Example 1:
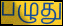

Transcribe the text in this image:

பழுது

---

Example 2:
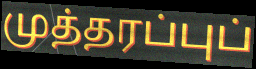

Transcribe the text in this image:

முத்தரப்புப்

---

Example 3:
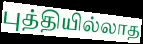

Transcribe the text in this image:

புத்தியில்லாத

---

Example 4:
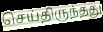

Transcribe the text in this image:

செய்திருந்தது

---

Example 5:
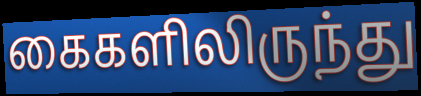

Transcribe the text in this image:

கைகளிலிருந்து